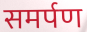
समर्पण